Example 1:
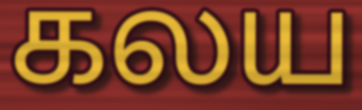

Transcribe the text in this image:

கலய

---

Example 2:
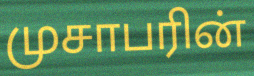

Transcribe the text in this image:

முசாபரின்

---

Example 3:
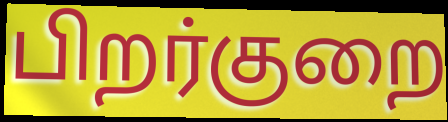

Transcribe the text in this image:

பிறர்குறை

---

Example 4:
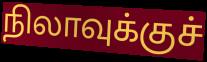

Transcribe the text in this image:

நிலாவுக்குச்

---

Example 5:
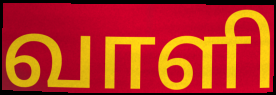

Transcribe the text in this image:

வாளி